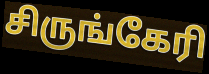
சிருங்கேரி